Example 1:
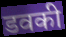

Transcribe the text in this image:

डवकी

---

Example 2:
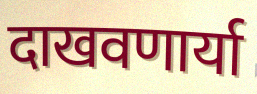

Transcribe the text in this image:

दाखवणार्या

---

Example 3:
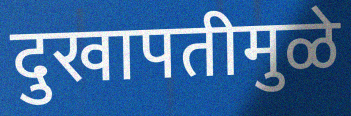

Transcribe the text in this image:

दुखापतीमुळे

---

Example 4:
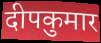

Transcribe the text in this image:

दीपकुमार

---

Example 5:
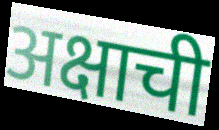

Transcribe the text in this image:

अक्षाची